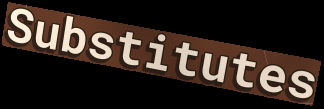
Substitutes